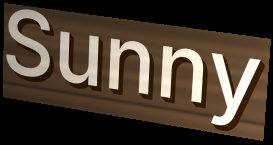
Sunny